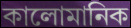
কালোমানিক